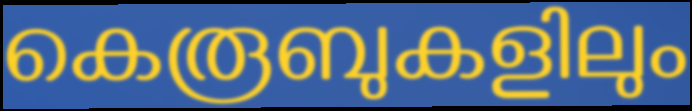
കെരൂബുകളിലും